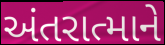
અંતરાત્માને